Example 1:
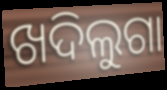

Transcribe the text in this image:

ଖଦିଲୁଗା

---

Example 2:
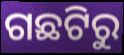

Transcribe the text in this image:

ଗଛଟିରୁ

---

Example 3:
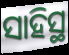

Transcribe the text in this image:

ସାହିସ୍ଥ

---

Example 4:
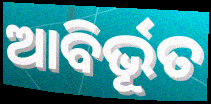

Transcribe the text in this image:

ଆବିର୍ଭୂତ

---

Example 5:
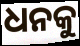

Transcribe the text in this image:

ଧନକୁ